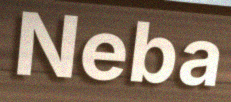
Neba